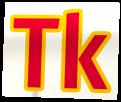
Tk